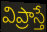
విప్రాస్తే